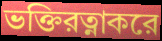
ভক্তিরত্নাকরে